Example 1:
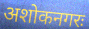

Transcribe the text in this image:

अशोकनगरः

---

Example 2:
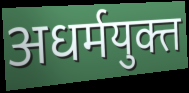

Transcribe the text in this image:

अधर्मयुक्त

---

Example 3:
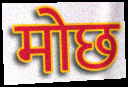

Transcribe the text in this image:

मोछ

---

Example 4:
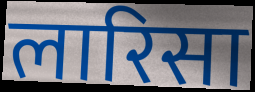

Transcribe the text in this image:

लारिसा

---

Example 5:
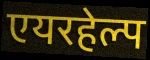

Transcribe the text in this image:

एयरहेल्प